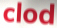
clod